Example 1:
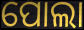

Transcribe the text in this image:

ପୋଲା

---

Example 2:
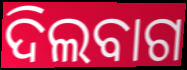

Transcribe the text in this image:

ଦିଲବାଗ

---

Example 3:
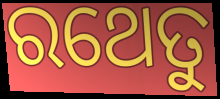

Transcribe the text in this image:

ରଥେତୁ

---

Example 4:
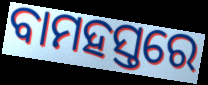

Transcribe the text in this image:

ବାମହସ୍ତରେ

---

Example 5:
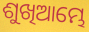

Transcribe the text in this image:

ଶୁଖିଆମ୍ଭେ